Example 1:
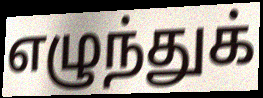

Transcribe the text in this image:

எழுந்துக்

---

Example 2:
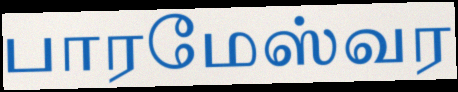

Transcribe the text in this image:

பாரமேஸ்வர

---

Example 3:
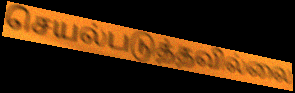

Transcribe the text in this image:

செயல்படுத்தவில்லை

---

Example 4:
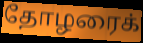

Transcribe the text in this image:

தோழரைக்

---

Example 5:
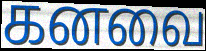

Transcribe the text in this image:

கனவை